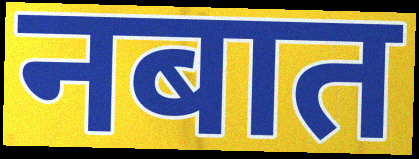
नबात